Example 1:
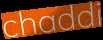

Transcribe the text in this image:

chaddi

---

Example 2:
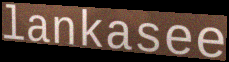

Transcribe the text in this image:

lankasee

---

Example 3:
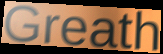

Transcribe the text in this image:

Greath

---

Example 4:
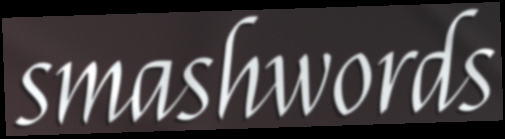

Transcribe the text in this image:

smashwords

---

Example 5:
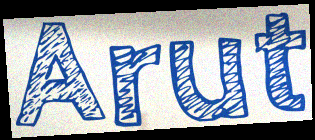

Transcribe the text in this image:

Arut